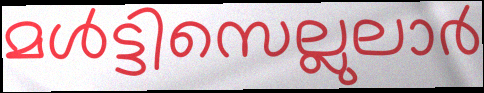
മൾട്ടിസെല്ലുലാർ